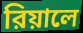
রিয়ালে